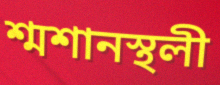
শ্মশানস্থলী